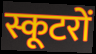
स्कूटरों